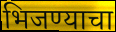
भिजण्याचा